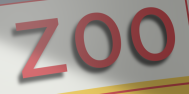
zoo